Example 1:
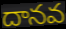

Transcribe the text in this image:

దానవ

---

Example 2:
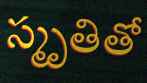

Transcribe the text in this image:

స్మృతితో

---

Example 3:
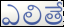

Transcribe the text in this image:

ఎలితే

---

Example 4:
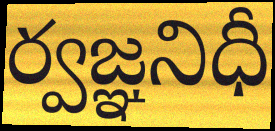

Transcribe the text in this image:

ర్వజ్ఞనిధీ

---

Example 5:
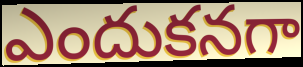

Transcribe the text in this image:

ఎందుకనగా